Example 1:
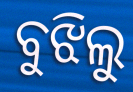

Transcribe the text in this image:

ବୁଝିଲୁ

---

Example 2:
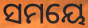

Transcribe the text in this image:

ସମୟେ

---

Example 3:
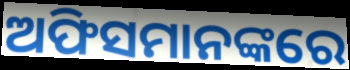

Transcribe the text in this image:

ଅଫିସମାନଙ୍କରେ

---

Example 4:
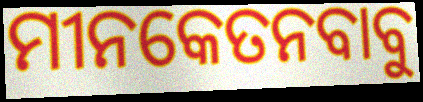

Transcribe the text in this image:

ମୀନକେତନବାବୁ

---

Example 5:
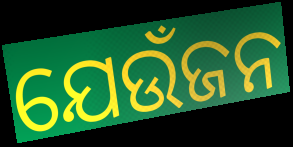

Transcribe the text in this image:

ଯେଉଁଜନ